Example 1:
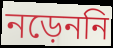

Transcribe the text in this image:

নড়েননি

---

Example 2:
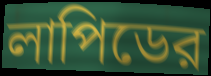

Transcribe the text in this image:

লাপিডের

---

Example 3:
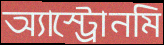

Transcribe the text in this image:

অ্যাস্ট্রোনমি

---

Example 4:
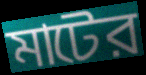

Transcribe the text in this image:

মাটের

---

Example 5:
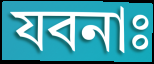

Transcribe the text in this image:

যবনাঃ